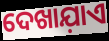
ଦେଖାଯ଼ାଏ